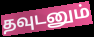
தவுடனும்